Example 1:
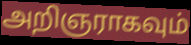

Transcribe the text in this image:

அறிஞராகவும்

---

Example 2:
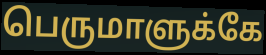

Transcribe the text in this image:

பெருமாளுக்கே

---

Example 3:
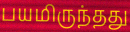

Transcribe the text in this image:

பயமிருந்தது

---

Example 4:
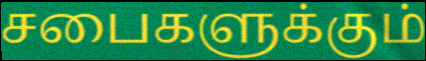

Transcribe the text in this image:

சபைகளுக்கும்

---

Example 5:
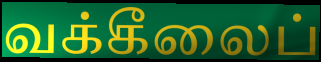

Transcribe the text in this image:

வக்கீலைப்